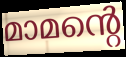
മാമന്റെ